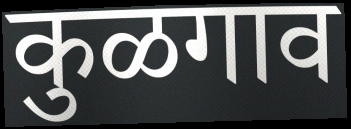
कुळगाव